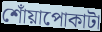
শোঁয়াপোকাটা